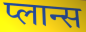
प्‍लान्‍स